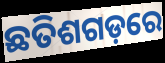
ଛତିଶଗଡ଼ରେ